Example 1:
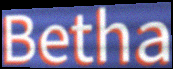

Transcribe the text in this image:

Betha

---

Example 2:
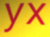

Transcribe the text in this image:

yx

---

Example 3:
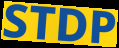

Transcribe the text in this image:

STDP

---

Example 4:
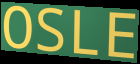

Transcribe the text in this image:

OSLE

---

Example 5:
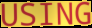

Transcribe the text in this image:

USING